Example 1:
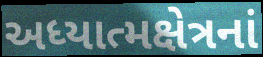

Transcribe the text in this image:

અધ્યાત્મક્ષેત્રનાં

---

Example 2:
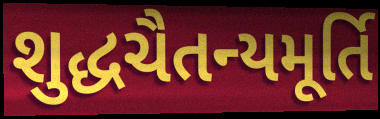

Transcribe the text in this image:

શુદ્ધચૈતન્યમૂર્તિ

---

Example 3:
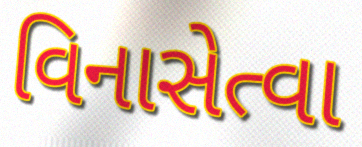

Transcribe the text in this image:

વિનાસેત્વા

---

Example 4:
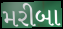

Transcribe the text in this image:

મરીબા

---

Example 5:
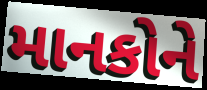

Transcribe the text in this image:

માનકોને